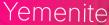
Yemenite